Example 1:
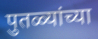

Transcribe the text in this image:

पुतळ्यांच्या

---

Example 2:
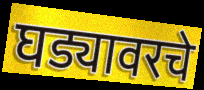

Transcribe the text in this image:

घड्यावरचे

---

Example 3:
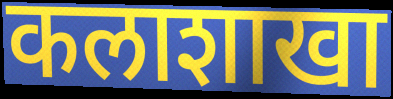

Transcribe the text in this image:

कलाशाखा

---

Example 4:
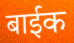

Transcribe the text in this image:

बाईक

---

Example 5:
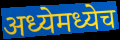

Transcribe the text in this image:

अध्येमध्येच